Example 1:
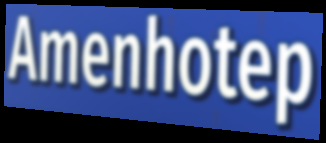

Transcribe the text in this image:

Amenhotep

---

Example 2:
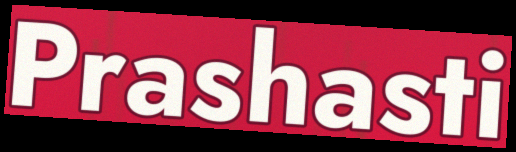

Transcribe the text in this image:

Prashasti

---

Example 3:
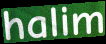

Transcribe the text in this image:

halim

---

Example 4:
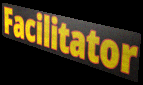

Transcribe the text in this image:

Facilitator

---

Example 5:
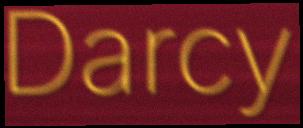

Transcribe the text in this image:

Darcy